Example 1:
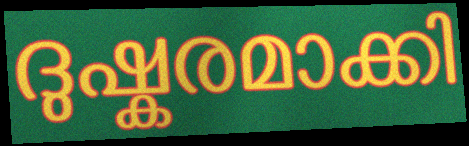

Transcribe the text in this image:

ദുഷ്കരമാക്കി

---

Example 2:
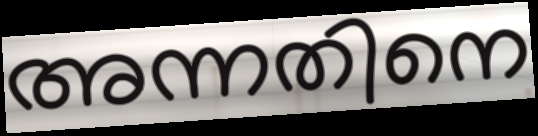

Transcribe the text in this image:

അന്നതിനെ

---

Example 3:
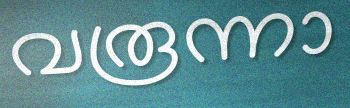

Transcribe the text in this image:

വരൂന്നാ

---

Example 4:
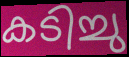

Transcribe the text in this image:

കടിച്ചു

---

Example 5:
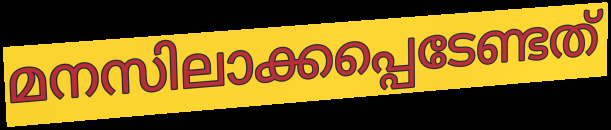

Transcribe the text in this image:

മനസിലാക്കപ്പെടേണ്ടത്